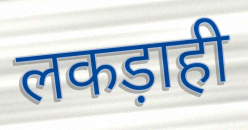
लकड़ाही